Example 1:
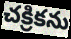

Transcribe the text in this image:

చక్రికను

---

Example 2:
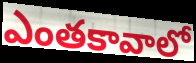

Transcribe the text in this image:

ఎంతకావాలో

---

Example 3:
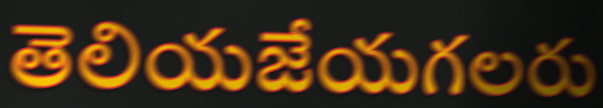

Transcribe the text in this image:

తెలియజేయగలరు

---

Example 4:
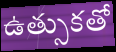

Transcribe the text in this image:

ఉత్సుకతో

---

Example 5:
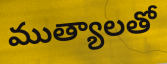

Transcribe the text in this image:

ముత్యాలతో